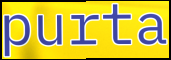
purta